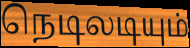
நெடிலடியும்